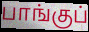
பாங்குப்